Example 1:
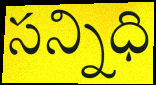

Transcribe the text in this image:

సన్నిధి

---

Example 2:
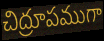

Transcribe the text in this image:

చిద్రూపముగా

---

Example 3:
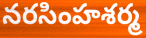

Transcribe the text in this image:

నరసింహశర్మ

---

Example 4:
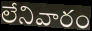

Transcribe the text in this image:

లేనివారం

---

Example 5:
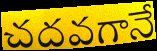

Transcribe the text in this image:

చదవగానే